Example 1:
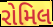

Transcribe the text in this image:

રોમિલ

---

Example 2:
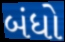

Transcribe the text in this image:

બંધો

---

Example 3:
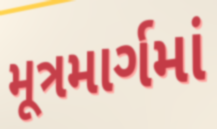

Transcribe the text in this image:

મૂત્રમાર્ગમાં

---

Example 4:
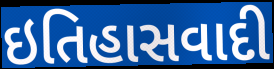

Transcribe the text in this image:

ઇતિહાસવાદી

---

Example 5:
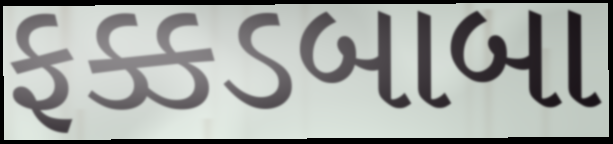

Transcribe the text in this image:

ફક્કડબાબા